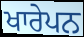
ਖਾਰੇਪਨ